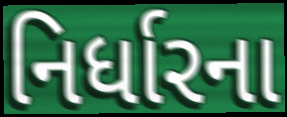
નિર્ધારના